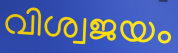
വിശ്വജയം